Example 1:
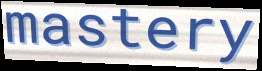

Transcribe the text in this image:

mastery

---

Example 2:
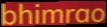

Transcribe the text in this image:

bhimrao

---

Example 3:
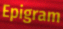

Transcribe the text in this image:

Epigram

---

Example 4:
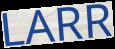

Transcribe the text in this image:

LARR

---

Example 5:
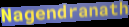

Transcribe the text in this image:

Nagendranath